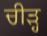
ਚੀੜ੍ਹ